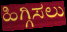
ಹಿಗ್ಗಿಸಲು